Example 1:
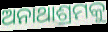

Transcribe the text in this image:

ଅନାଥାଶ୍ରମକୁ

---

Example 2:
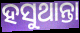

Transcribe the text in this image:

ହସୁଥାନ୍ତା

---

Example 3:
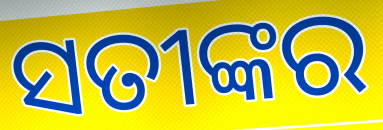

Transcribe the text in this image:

ସତୀଙ୍କର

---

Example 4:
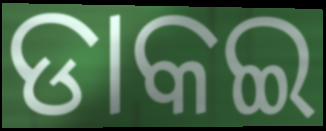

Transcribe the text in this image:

ଡାକଇ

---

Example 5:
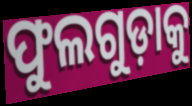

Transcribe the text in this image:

ଫୁଲଗୁଡ଼ାକୁ